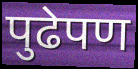
पुढेपण